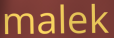
malek